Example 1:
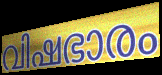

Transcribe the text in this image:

വിഷഭാരം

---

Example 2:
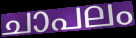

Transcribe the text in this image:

ചാപലം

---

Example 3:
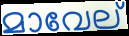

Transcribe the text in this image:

മാവേല്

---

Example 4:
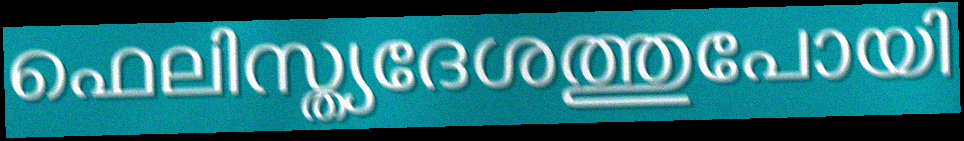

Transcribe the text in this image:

ഫെലിസ്ത്യദേശത്തുപോയി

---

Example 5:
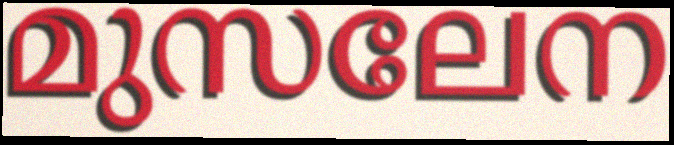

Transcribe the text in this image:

മുസലേന